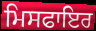
ਮਿਸਫਾਇਰ